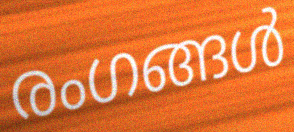
രംഗങ്ങൾ